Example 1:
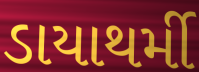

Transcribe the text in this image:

ડાયાથર્મી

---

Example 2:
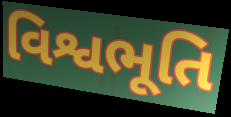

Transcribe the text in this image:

વિશ્વભૂતિ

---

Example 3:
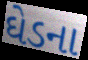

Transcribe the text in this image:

ઘેડના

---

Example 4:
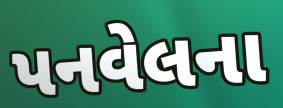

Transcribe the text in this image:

પનવેલના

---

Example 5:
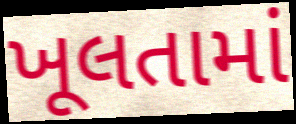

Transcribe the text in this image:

ખૂલતામાં